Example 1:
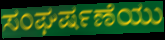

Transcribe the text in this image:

ಸಂಘರ್ಷಣೆಯು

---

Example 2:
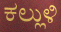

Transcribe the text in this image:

ಕಲ್ಲುಳಿ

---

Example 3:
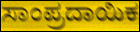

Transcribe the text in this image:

ಸಾಂಪ್ರದಾಯಿಕ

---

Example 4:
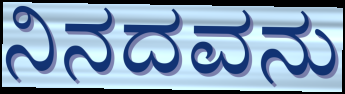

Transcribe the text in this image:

ನಿನದವನು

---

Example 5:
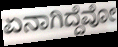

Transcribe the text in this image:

ಏನಾಗಿದ್ದೆವೋ